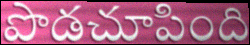
పొడచూపింది